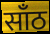
साँठ